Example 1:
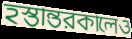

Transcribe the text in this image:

হস্তান্তরকালেও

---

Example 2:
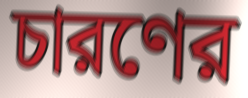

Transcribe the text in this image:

চারণের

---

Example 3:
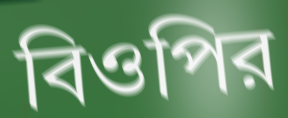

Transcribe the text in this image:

বিওপির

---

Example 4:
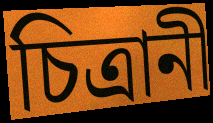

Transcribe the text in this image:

চিত্রানী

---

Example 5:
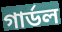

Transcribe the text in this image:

গার্ডল